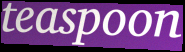
teaspoon